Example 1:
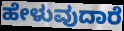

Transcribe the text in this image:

ಹೇಳುವುದಾರೆ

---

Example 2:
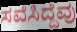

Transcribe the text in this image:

ಸವೆಸಿದ್ದೆವು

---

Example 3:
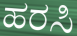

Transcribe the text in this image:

ಹರಸಿ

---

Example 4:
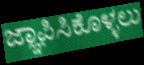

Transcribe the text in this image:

ಜ್ಞಾಪಿಸಿಕೊಳ್ಳಲು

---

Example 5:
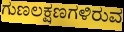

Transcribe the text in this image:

ಗುಣಲಕ್ಷಣಗಳಿರುವ